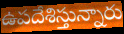
ఉపదేశిస్తున్నారు